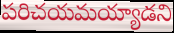
పరిచయమయ్యాడని